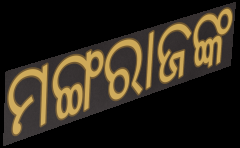
ମଙ୍ଗରାଜଙ୍କ